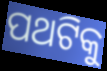
ପଥଟିକୁ